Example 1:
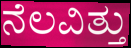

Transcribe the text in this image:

ನೆಲವಿತ್ತು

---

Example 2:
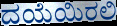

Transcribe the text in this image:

ದಯೆಯಿರಲಿ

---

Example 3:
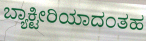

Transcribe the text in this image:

ಬ್ಯಾಕ್ಟೀರಿಯಾದಂತಹ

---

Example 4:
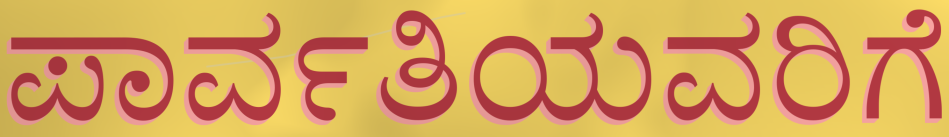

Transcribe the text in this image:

ಪಾರ್ವತಿಯವರಿಗೆ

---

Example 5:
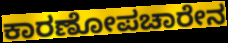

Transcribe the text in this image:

ಕಾರಣೋಪಚಾರೇನ